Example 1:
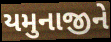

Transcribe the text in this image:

યમુનાજીને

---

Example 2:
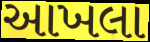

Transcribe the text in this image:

આખલા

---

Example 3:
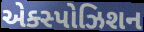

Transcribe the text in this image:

એક્સ્પોઝિશન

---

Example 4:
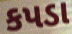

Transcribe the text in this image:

કપડા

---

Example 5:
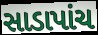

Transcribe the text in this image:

સાડાપાંચ